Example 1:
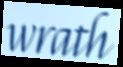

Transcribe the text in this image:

wrath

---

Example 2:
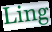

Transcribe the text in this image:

Ling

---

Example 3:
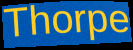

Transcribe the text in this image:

Thorpe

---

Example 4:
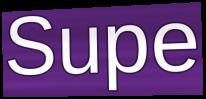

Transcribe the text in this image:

Supe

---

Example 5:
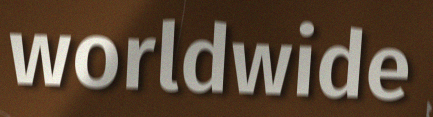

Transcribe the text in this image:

worldwide